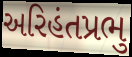
અરિહંતપ્રભુ